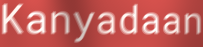
Kanyadaan